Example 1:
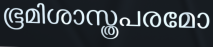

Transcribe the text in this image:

ഭൂമിശാസ്ത്രപരമോ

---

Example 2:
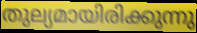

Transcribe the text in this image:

തുല്യമായിരിക്കുന്നു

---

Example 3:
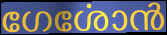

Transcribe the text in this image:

ഗേൎശോൻ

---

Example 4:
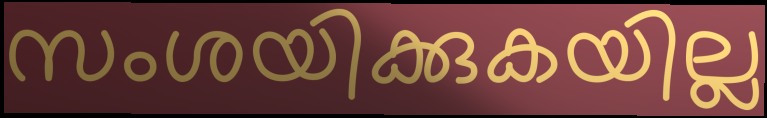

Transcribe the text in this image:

സംശയിക്കുകയില്ല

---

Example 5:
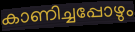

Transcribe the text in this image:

കാണിച്ചപ്പോഴും